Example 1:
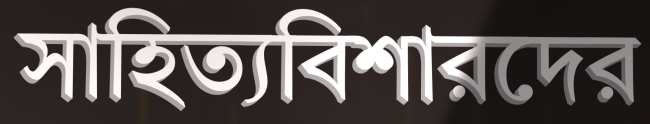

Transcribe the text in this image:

সাহিত্যবিশারদের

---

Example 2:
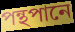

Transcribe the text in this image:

পন্থপানে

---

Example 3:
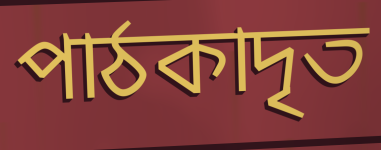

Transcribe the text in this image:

পাঠকাদৃত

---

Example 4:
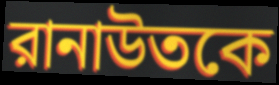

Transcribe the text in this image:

রানাউতকে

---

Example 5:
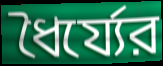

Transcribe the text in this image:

ধৈর্য্যের